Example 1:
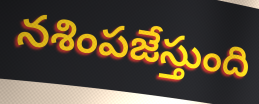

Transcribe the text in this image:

నశింపజేస్తుంది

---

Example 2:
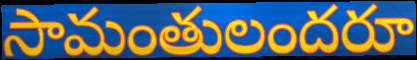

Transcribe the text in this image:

సామంతులందరూ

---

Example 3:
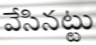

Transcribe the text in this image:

వేసినట్టు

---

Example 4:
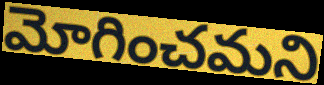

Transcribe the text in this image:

మోగించమని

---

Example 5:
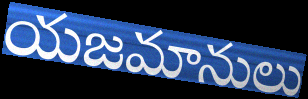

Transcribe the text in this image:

యజమానులు